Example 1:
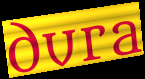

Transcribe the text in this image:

dura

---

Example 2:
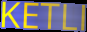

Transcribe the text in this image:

KETLI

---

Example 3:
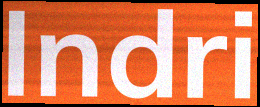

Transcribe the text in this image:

Indri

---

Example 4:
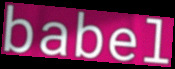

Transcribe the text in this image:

babel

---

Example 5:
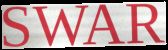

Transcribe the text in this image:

SWAR